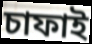
চাফাই